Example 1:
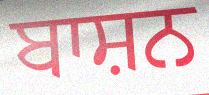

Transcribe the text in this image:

ਬਾਸ਼ਨ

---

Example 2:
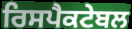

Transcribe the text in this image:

ਰਿਸਪੈਕਟੇਬਲ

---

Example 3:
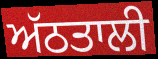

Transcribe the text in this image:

ਅੱਠਤਾਲੀ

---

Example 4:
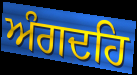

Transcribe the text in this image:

ਅੰਗਦਹਿ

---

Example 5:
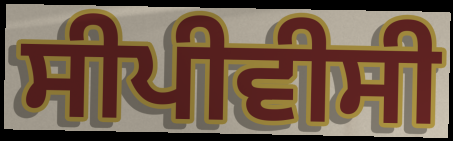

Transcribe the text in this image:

ਸੀਪੀਵੀਸੀ